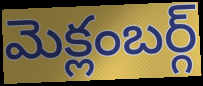
మెక్లంబర్గ్